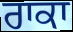
ਰਾਕਾ